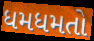
ધમધમતો